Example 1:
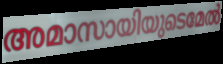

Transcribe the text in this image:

അമാസായിയുടെമേൽ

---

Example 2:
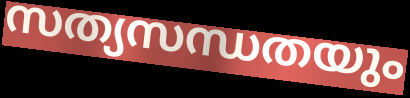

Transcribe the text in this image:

സത്യസന്ധതയും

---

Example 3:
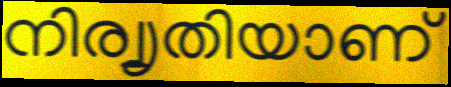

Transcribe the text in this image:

നിര്വൃതിയാണ്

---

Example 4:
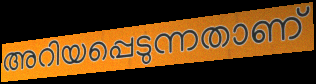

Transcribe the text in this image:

അറിയപ്പെടുന്നതാണ്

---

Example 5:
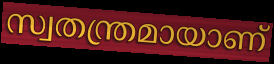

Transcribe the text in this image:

സ്വതന്ത്രമായാണ്